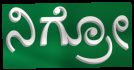
ನಿಗ್ರೋ